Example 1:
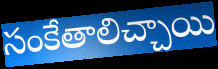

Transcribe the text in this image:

సంకేతాలిచ్చాయి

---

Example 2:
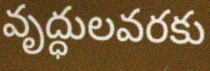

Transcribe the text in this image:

వృద్ధులవరకు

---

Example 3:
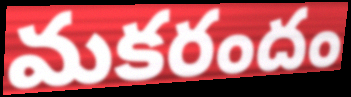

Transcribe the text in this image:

మకరందం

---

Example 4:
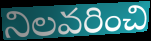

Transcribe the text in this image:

నిలవరించి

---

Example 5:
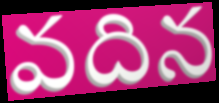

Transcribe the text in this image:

వదిన